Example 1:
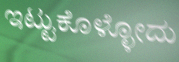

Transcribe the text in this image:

ಇಟ್ಟುಕೊಳ್ಳೋದು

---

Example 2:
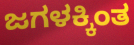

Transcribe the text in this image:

ಜಗಳಕ್ಕಿಂತ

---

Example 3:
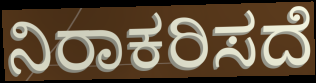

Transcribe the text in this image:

ನಿರಾಕರಿಸದೆ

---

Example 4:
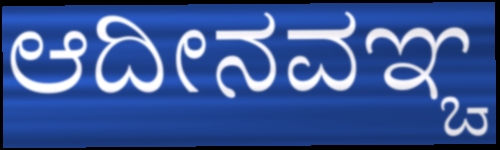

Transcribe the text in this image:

ಆದೀನವಞ್ಚ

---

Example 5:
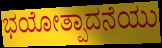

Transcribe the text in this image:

ಭಯೋತ್ಪಾದನೆಯು